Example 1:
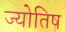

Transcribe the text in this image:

ज्योतिष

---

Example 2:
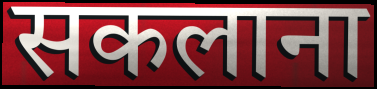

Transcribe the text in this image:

सकलाना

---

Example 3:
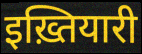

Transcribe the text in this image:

इख़्तियारी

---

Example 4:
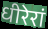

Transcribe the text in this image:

धीरेरां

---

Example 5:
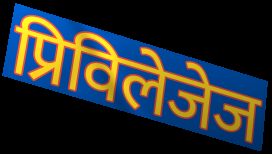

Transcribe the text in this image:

प्रिविलेजेज